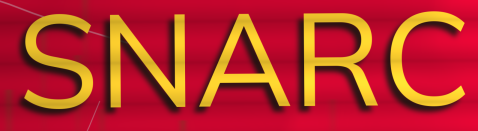
SNARC